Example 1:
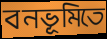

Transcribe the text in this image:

বনভূমিতে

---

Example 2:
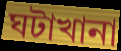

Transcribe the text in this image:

ঘটাখানা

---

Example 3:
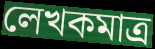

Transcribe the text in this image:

লেখকমাত্র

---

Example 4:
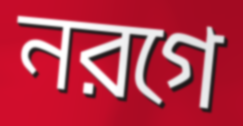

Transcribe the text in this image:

নরগে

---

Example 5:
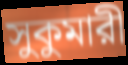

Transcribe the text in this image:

সুকুমারী